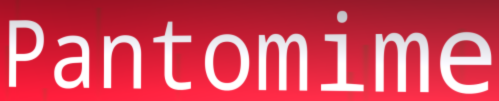
Pantomime